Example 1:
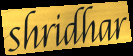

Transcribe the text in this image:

shridhar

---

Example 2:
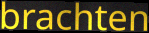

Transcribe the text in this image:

brachten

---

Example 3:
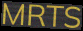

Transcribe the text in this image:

MRTS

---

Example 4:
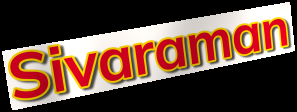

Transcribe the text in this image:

Sivaraman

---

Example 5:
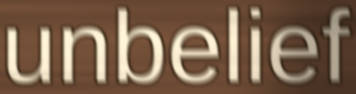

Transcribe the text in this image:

unbelief